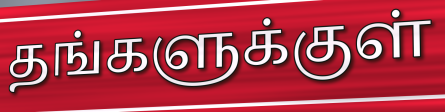
தங்களுக்குள்